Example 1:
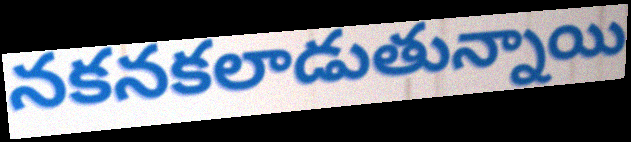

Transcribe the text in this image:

నకనకలాడుతున్నాయి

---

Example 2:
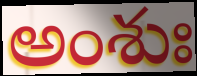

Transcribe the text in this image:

అంశుః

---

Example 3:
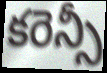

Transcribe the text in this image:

కరెన్సీ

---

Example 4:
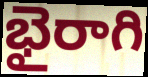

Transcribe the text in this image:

భైరాగి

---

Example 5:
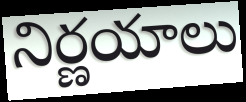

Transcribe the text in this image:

నిర్ణయాలు